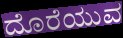
ದೊರೆಯುವ